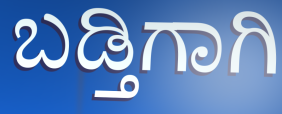
ಬಡ್ತಿಗಾಗಿ